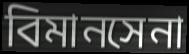
বিমানসেনা